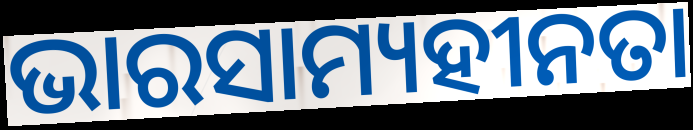
ଭାରସାମ୍ୟହୀନତା